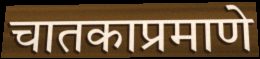
चातकाप्रमाणे